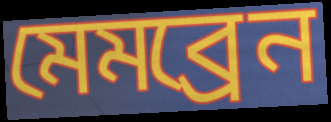
মেমব্ৰেন